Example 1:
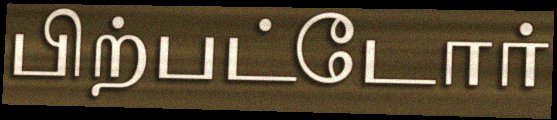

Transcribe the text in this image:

பிற்பட்டோர்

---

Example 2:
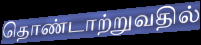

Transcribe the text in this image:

தொண்டாற்றுவதில்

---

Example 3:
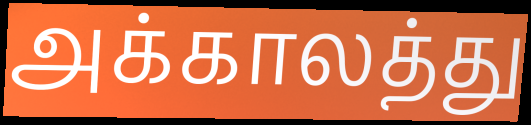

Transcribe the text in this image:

அக்காலத்து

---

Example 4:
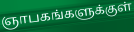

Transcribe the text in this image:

ஞாபகங்களுக்குள்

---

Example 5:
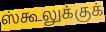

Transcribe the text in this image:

ஸ்கூலுக்குக்